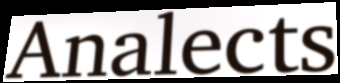
Analects